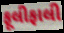
ફૂલીફાલી